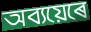
অব্যয়েৰে